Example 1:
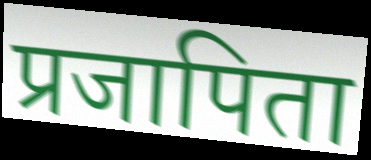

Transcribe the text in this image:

प्रजापिता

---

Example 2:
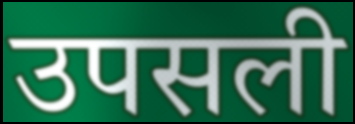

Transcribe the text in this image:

उपसली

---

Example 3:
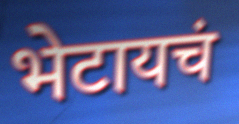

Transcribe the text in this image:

भेटायचं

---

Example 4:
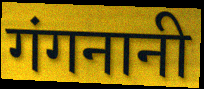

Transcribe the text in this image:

गंगनानी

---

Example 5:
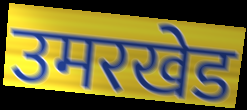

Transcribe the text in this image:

उमरखेड